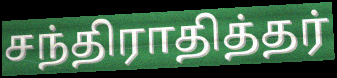
சந்திராதித்தர்